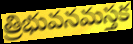
త్రిభువనమస్తక